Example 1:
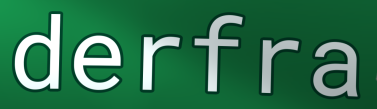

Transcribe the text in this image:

derfra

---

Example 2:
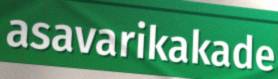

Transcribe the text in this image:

asavarikakade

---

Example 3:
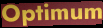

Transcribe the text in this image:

Optimum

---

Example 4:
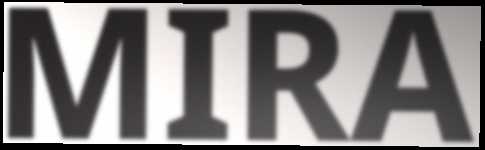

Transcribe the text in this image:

MIRA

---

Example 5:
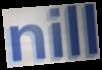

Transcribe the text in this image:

nill